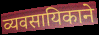
व्यवसायिकाने